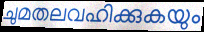
ചുമതലവഹിക്കുകയും